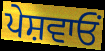
ਪੇਸ਼ਵਾਓਂ